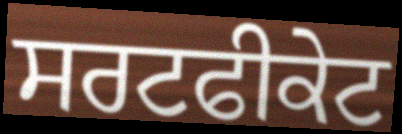
ਸਰਟਫੀਕੇਟ